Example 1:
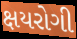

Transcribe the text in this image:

ક્ષયરોગી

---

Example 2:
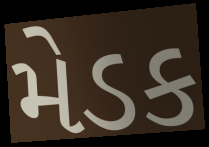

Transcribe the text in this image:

મેડક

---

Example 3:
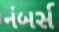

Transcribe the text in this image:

નંબર્સ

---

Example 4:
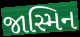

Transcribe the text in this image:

જાસ્મિન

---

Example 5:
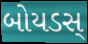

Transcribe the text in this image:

બોયડસ્